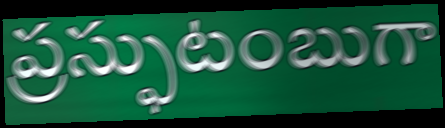
ప్రస్ఫుటంబుగా